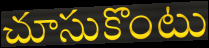
చూసుకొంటు